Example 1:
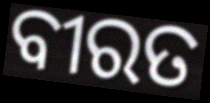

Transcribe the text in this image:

ବୀରତ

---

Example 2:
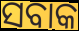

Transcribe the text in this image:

ସବାକ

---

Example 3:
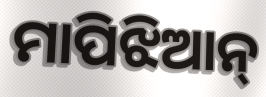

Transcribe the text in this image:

ମାପିଝିଆନ୍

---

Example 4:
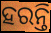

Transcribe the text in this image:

ହରନ୍ତି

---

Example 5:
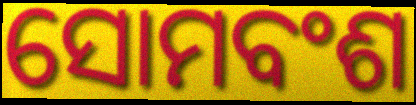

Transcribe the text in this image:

ସୋମବଂଶ